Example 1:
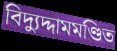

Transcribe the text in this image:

বিদ্যুদ্দামমণ্ডিত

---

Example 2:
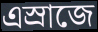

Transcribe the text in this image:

এস্রাজে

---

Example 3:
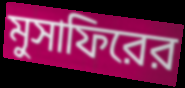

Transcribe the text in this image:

মুসাফিরের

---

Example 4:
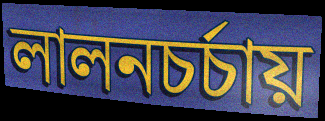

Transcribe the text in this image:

লালনচর্চায়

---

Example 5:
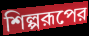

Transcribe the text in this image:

শিল্পরূপের